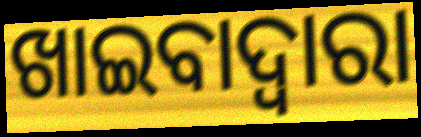
ଖାଇବାଦ୍ୱାରା